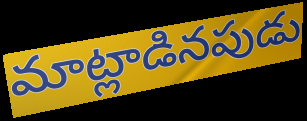
మాట్లాడినపుడు